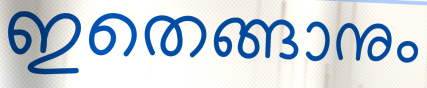
ഇതെങ്ങാനും